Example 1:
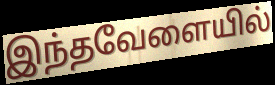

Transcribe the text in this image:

இந்தவேளையில்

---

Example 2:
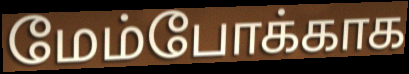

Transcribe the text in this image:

மேம்போக்காக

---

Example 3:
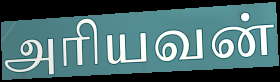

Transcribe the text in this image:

அரியவன்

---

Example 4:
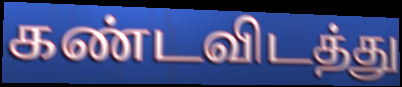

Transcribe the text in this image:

கண்டவிடத்து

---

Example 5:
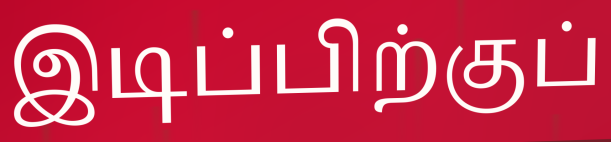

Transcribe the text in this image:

இடிப்பிற்குப்